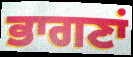
ਭਾਗਣਾਂ